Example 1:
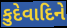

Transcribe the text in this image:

કુદેવાદિને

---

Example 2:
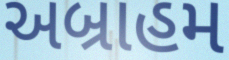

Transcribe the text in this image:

અબ્રાહમ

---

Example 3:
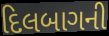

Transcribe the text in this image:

દિલબાગની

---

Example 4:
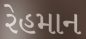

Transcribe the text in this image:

રેહમાન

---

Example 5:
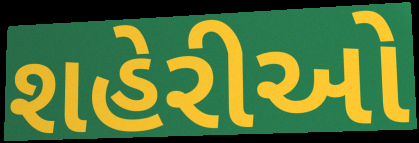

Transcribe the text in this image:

શહેરીઓ